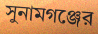
সুনামগঞ্জের